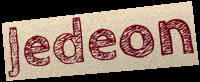
Jedeon